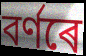
বৰ্ণৰে